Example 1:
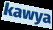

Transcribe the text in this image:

kawya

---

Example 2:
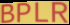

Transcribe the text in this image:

BPLR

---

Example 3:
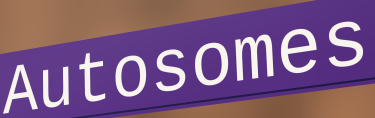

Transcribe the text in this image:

Autosomes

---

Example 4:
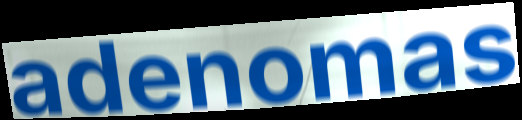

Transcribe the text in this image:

adenomas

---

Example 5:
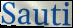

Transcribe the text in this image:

Sauti